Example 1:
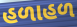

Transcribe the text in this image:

હળાહળ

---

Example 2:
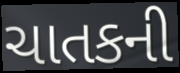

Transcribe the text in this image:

ચાતકની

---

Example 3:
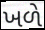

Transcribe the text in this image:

ખળે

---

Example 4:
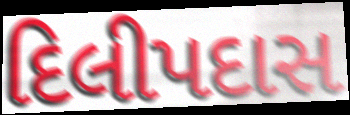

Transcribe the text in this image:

દિલીપદાસ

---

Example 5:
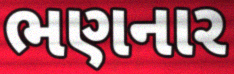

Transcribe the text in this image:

ભણનાર